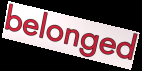
belonged